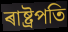
ৰাষ্ট্ৰপতি